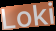
Loki